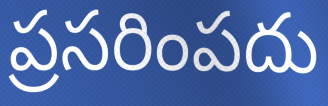
ప్రసరింపదు